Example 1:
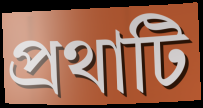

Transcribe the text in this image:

প্রথাটি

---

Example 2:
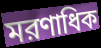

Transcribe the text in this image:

মরণাধিক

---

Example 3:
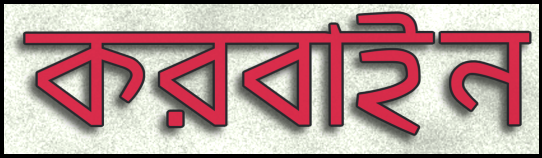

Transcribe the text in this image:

করবাইন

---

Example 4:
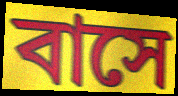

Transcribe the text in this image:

বাসে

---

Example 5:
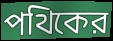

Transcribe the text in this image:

পথিকের